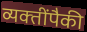
व्यक्‍तींपैकी